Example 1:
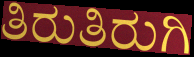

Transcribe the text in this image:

ತಿರುತಿರುಗಿ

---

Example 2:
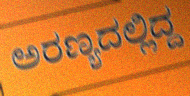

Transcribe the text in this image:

ಅರಣ್ಯದಲ್ಲಿದ್ದ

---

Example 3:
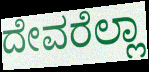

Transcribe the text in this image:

ದೇವರೆಲ್ಲಾ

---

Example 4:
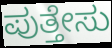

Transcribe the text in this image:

ಪುತ್ತೇಸು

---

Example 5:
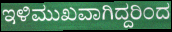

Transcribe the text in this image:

ಇಳಿಮುಖವಾಗಿದ್ದರಿಂದ